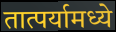
तात्पर्यामध्ये